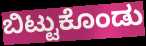
ಬಿಟ್ಟುಕೊಂಡು